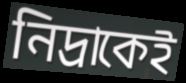
নিদ্রাকেই